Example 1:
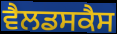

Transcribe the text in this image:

ਵੈਲਡਸਕੈਸ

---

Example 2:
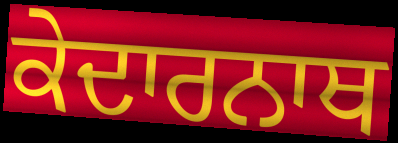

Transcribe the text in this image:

ਕੇਦਾਰਨਾਥ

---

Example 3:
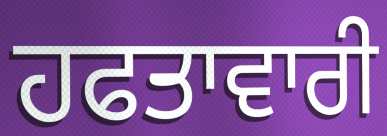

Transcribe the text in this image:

ਹਫਤਾਵਾਰੀ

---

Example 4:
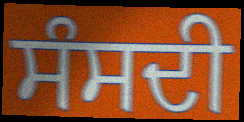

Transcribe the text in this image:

ਸੰਸਦੀ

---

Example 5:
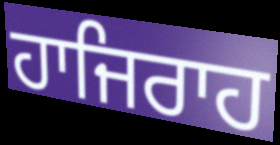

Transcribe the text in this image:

ਹਾਜਿਰਾਹ